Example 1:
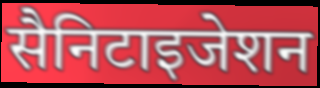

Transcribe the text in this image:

सैनिटाइजेशन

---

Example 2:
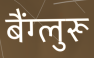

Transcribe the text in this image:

बैंग्लुरू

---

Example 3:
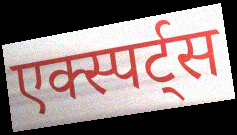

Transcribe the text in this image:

एक्स्पर्ट्स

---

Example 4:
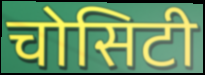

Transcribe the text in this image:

चोसिटी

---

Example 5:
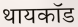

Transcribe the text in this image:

थायकॉड